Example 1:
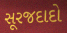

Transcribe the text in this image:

સૂરજદાદો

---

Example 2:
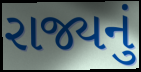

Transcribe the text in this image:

રાજ્યનું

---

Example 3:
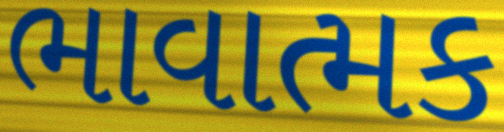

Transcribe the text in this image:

ભાવાત્મક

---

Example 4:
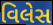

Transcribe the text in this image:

વિલેસ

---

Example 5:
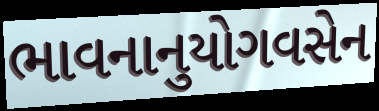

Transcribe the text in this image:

ભાવનાનુયોગવસેન